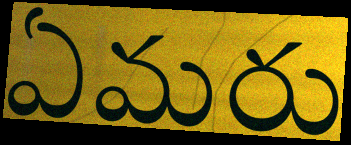
ఏమరు